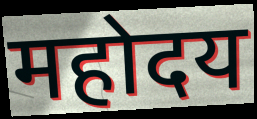
महोदय